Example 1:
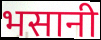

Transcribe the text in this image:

भसानी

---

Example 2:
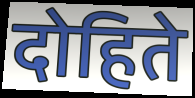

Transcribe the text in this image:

दोहिते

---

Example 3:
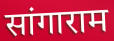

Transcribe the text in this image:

सांगाराम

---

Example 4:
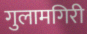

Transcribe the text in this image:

गुलामगिरी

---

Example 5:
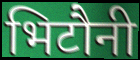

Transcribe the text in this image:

भिटौनी